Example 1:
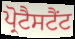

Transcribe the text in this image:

ਪ੍ਰੋਟੈਸਟੈਂਟ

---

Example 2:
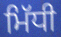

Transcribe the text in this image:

ਮਿੱਧੀ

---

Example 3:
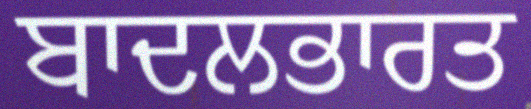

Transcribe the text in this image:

ਬਾਦਲਭਾਰਤ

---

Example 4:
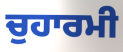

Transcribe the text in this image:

ਚੁਹਾਰਮੀ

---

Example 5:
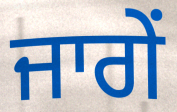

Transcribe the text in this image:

ਜਾਗੇਂ